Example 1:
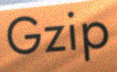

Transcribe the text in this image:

Gzip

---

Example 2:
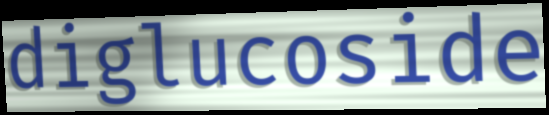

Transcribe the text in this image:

diglucoside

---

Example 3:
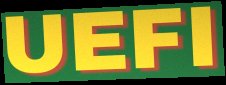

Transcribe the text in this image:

UEFI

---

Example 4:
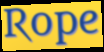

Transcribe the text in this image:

Rope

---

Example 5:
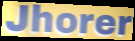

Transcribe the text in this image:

Jhorer